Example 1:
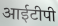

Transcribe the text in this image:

आईटीपी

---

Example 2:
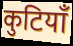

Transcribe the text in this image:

कुटियाँ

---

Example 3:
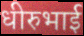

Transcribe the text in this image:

धीरुभाई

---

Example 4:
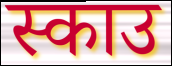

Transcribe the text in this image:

स्काउ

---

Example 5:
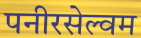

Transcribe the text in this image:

पनीरसेल्वम